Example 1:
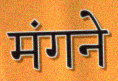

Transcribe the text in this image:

मंगने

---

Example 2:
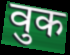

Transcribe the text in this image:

वुक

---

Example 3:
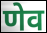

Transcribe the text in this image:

णेव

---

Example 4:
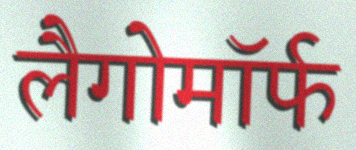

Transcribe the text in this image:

लैगोमॉर्फ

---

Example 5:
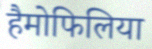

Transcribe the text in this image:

हैमोफिलिया